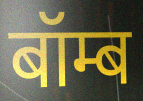
बॉम्ब